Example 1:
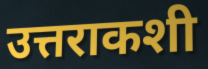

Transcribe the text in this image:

उत्तराकशी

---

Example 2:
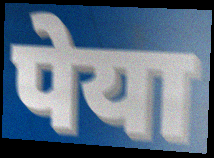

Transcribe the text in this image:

पेया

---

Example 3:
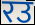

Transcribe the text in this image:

रउ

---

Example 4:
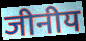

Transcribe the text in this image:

जीनीय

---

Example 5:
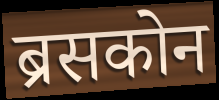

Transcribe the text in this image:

ब्रसकोन